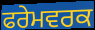
ਫਰੇਮਵਰਕ